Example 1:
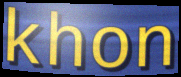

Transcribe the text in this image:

khon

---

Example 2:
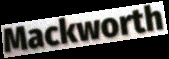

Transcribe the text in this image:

Mackworth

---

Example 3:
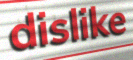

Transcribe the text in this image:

dislike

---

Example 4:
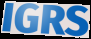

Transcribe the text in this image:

IGRS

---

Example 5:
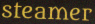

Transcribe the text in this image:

steamer